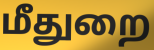
மீதுறை